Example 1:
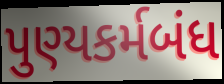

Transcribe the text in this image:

પુણ્યકર્મબંધ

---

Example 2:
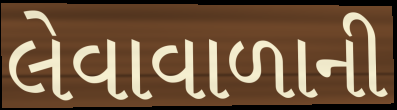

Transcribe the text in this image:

લેવાવાળાની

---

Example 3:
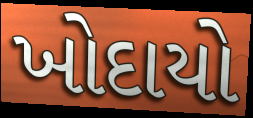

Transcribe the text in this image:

ખોદાયો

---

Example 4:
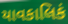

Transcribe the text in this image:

યાવકાલિકં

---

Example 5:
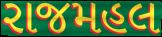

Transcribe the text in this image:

રાજમહલ